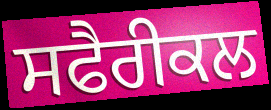
ਸਫੈਰੀਕਲ